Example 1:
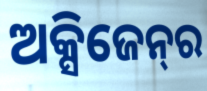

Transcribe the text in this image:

ଅକ୍ସିଜେନ୍‌ର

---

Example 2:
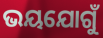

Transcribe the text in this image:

ଭୟଯୋଗୁଁ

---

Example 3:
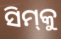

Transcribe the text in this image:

ସିମ୍‌କୁ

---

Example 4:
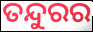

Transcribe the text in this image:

ତନ୍ଦୁରର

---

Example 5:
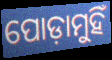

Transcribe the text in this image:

ପୋଡ଼ାମୁହିଁ